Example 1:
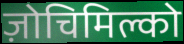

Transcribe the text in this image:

ज़ोचिमिल्को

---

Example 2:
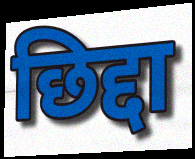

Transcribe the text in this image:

छिद्दा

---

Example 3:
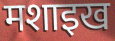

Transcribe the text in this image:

मशाइख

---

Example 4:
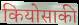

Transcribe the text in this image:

कियोसाकी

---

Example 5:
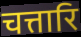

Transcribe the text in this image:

चत्तारि